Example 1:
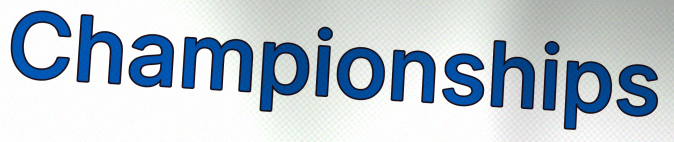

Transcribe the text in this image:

Championships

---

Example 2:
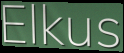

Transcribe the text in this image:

Elkus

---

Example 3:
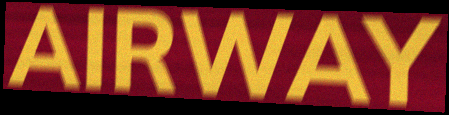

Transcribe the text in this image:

AIRWAY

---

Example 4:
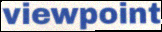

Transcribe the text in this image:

viewpoint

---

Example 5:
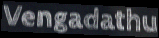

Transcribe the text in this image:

Vengadathu